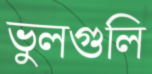
ভুলগুলি